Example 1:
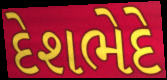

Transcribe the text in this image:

દેશભેદે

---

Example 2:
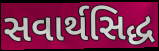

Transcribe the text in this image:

સવાર્થસિદ્ધ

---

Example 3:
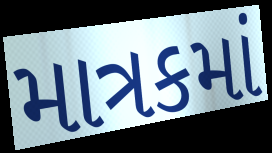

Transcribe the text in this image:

માત્રકમાં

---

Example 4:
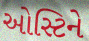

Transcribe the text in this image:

ઓસ્ટિને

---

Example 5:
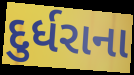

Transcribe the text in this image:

દુર્ધરાના